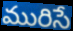
మురిసే